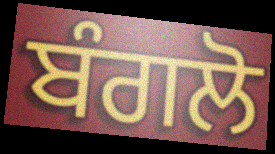
ਬੰਗਲੋ